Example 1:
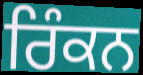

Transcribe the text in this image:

ਰਿੰਕਨ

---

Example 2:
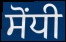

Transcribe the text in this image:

ਸੋਂਧੀ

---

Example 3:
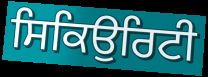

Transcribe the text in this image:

ਸਿਕਿਉਰਿਟੀ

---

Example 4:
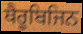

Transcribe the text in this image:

ਥੈਰੂਬਿਜਿਨ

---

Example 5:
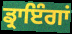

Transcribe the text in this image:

ਡ੍ਰਾਇੰਗਾਂ